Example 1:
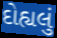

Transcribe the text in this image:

દોહ્યલું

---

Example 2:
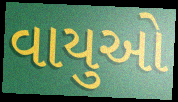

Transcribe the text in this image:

વાયુઓ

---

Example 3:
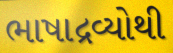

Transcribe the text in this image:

ભાષાદ્રવ્યોથી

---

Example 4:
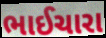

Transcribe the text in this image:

ભાઈચારા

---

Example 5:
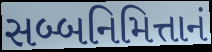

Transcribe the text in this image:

સબ્બનિમિત્તાનં